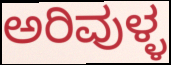
ಅರಿವುಳ್ಳ